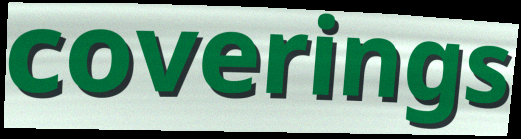
coverings